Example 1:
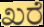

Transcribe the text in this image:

ಖರೆ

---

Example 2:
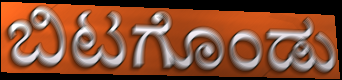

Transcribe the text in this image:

ಬಿಟಗೊಂಡು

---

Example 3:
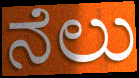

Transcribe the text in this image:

ನೆಲು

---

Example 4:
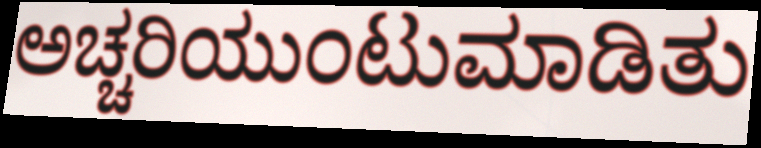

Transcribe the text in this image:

ಅಚ್ಚರಿಯುಂಟುಮಾಡಿತು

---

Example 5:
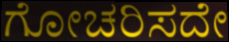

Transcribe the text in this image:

ಗೋಚರಿಸದೇ